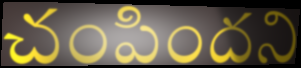
చంపిందని